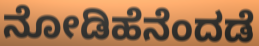
ನೋಡಿಹೆನೆಂದಡೆ